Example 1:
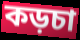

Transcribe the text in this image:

কড়চা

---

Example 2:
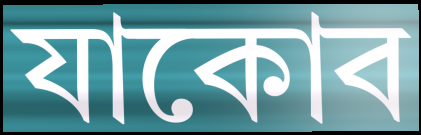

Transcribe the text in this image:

যাকোব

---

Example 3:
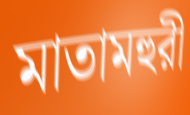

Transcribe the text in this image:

মাতামহুরী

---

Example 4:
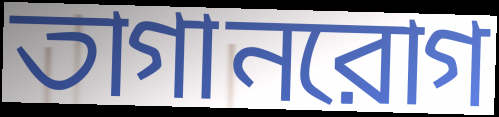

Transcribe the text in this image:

তাগানরোগ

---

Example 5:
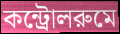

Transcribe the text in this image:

কন্ট্রোলরুমে